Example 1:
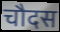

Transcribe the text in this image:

चौदस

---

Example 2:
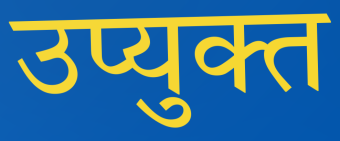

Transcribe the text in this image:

उप्युक्त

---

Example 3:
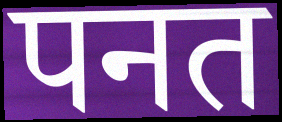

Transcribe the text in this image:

पनत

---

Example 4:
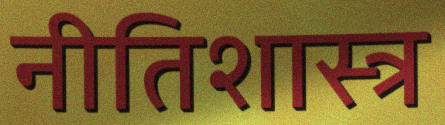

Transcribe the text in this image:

नीतिशास्त्र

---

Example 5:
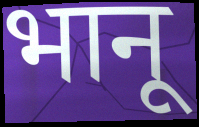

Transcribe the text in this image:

भानू